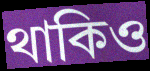
থাকিও